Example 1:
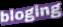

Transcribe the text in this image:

bloging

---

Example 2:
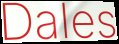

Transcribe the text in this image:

Dales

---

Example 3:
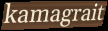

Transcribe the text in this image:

kamagrait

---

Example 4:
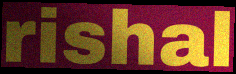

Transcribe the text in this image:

rishal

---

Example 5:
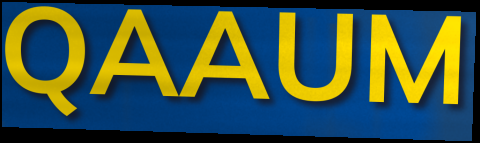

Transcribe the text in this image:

QAAUM